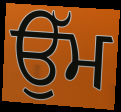
ਉੱਮ